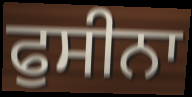
ਫੁਸੀਨਾ